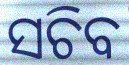
ସଚିବ